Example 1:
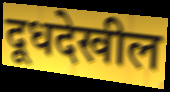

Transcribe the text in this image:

दूधदेखील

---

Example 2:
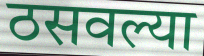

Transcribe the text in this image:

ठसवल्या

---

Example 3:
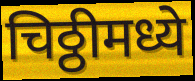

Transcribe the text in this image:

चिठ्ठीमध्ये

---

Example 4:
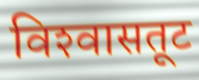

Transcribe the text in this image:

विश्वासतूट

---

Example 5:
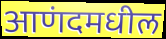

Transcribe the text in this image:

आणंदमधील